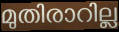
മുതിരാറില്ല